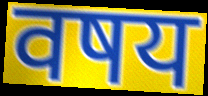
वषय